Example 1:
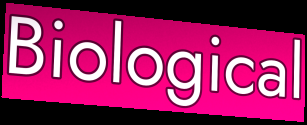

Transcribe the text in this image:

Biological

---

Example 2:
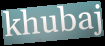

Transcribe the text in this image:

khubaj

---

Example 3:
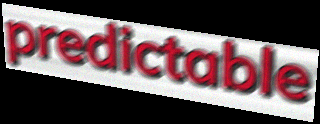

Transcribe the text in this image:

predictable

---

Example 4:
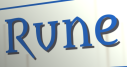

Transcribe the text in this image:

Rune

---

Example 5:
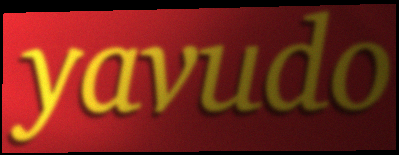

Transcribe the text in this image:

yavudo